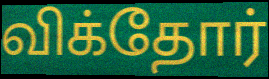
விக்தோர்